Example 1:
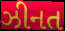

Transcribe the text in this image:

ઝીનત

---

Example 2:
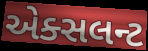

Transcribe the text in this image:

એક્સલન્ટ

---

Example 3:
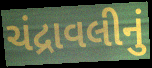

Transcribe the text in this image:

ચંદ્રાવલીનું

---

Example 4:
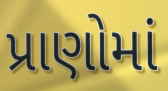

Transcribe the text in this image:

પ્રાણોમાં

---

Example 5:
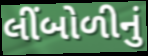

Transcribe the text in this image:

લીંબોળીનું